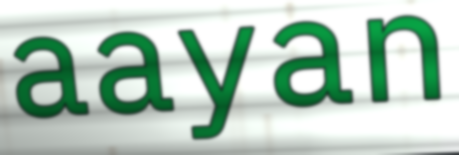
aayan